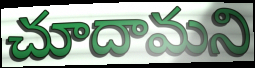
చూదామని